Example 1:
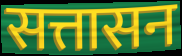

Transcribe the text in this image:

सत्तासन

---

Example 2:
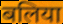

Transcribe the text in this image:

बलिया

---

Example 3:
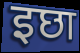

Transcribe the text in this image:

इछा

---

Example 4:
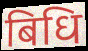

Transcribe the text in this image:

बिधि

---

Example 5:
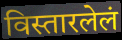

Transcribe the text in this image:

विस्तारलेलं